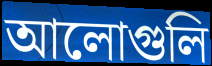
আলোগুলি